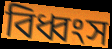
বিধ্বংস